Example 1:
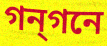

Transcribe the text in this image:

গন্গনে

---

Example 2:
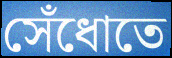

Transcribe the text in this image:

সেঁধোতে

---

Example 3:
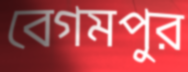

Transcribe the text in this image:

বেগমপুর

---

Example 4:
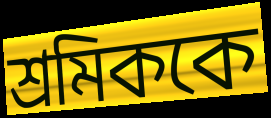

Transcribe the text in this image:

শ্রমিককে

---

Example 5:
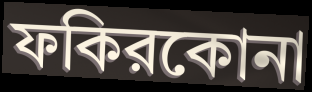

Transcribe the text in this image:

ফকিরকোনা